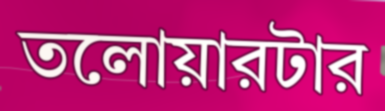
তলোয়ারটার